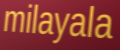
milayala